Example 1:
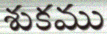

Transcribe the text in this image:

శుకము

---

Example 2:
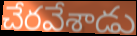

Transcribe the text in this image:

చేరవేశాడు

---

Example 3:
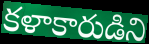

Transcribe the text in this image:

కళాకారుడిని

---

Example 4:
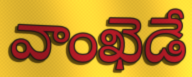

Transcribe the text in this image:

వాంఖెడే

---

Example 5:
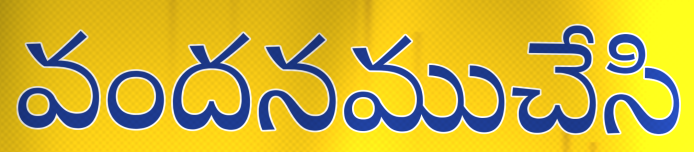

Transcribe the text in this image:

వందనముచేసి